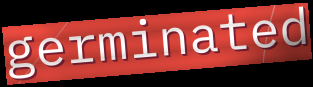
germinated